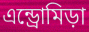
এন্ড্রোমিড়া